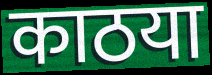
काठया